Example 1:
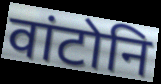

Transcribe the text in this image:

वांटोनि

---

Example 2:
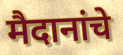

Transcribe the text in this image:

मैदानांचे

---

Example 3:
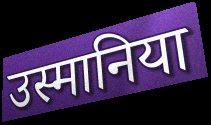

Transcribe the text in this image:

उस्मानिया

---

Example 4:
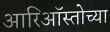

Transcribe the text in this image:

आरिऑस्तोच्या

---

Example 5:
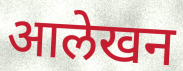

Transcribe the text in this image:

आलेखन